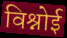
विश्नोई